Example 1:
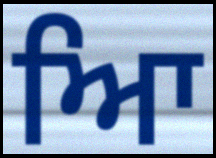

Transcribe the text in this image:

ਆਿ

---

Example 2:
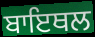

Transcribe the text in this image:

ਬਾਇਥਲ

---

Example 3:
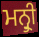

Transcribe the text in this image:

ਮਨ੍ਤ੍ਰੀ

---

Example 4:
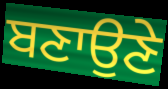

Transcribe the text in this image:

ਬਣਾਉਣੇ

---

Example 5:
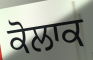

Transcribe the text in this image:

ਕੋਲਾਕ